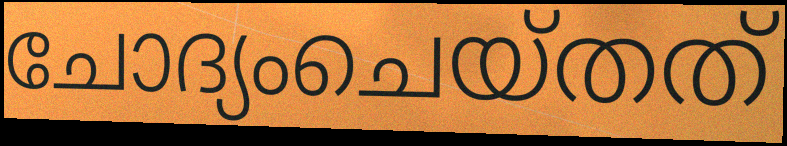
ചോദ്യംചെയ്തത്